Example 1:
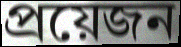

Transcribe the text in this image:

প্রয়েজন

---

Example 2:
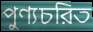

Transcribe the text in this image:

পুণ্যচরিত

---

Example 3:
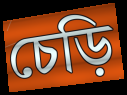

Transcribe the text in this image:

চেড়ি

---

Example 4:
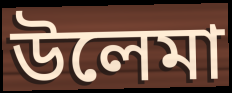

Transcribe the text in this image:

উলেমা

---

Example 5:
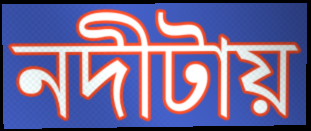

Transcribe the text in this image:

নদীটায়